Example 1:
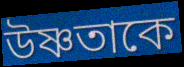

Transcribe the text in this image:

উষ্ণতাকে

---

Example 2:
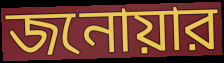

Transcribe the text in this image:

জনোয়ার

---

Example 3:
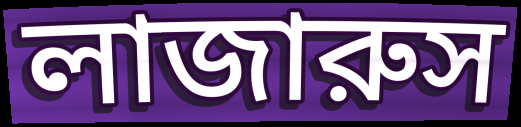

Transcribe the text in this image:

লাজারুস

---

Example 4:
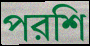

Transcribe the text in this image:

পরশি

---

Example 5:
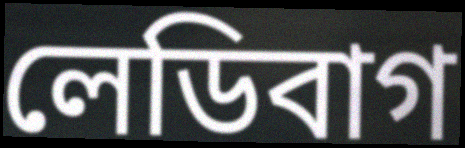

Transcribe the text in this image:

লেডিবাগ